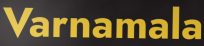
Varnamala